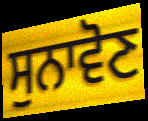
ਸੁਨਾਵੋਣ